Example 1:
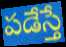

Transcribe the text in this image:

పడేస్తే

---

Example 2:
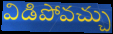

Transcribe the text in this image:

విడిపోవచ్చు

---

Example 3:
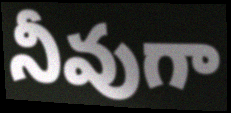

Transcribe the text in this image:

నీవుగా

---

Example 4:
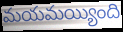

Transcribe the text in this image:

మయమయ్యింది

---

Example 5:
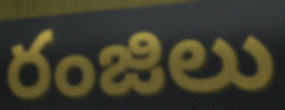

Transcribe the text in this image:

రంజిలు